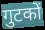
गुटकों